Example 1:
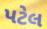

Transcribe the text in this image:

પટેલ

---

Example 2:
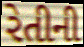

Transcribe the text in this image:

રેતીની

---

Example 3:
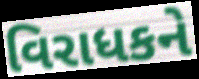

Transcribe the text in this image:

વિરાધકને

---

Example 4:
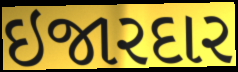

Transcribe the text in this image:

ઇજારદાર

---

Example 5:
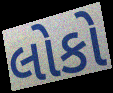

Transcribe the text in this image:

લોકો